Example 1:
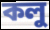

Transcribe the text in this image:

কলু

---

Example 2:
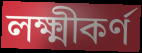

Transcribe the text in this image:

লক্ষ্মীকর্ণ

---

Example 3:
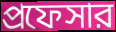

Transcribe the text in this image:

প্রফেসার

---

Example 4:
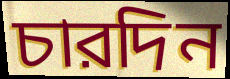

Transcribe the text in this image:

চারদিন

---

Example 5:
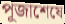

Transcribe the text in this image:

পূজাশেষে